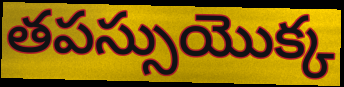
తపస్సుయొక్క